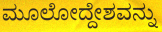
ಮೂಲೋದ್ದೇಶವನ್ನು